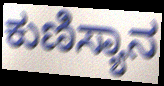
ಕುಣಿಸ್ಯಾನ